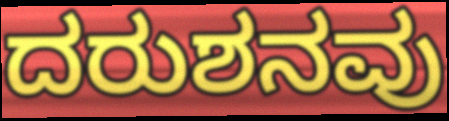
ದರುಶನವು